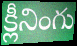
క్లీనింగు